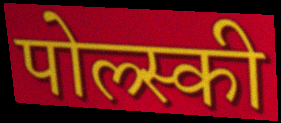
पोल्स्की